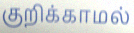
குறிக்காமல்